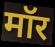
मॉर